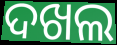
ଦଖଲ